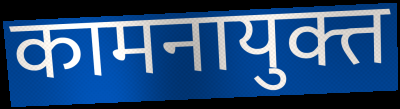
कामनायुक्त